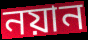
নয়ান